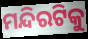
ମନ୍ଦିରଟିକୁ